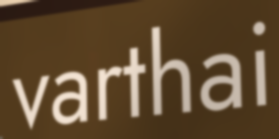
varthai